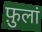
फ़ुलां